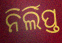
ନିର୍ଲିପ୍ତ